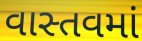
વાસ્તવમાં